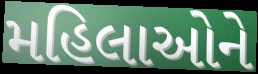
મહિલાઓને